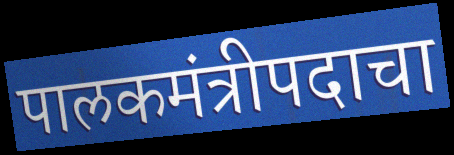
पालकमंत्रीपदाचा